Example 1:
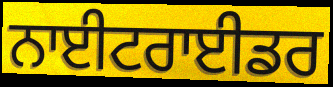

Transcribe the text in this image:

ਨਾਈਟਰਾਈਡਰ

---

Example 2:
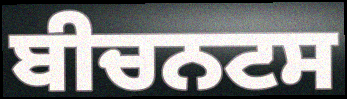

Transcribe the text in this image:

ਬੀਚਨਟਸ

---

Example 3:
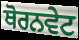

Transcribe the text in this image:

ਥੋਰਨਵੇਟ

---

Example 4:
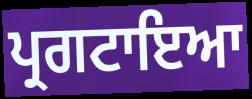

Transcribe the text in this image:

ਪ੍ਰਗਟਾਇਆ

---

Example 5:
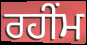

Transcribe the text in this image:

ਰਹੀਂਮ